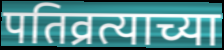
पतिव्रत्याच्या